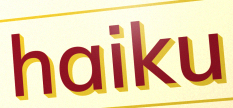
haiku